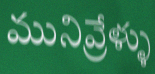
మునివ్రేళ్ళు